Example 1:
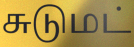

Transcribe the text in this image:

சுடுமட்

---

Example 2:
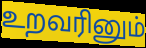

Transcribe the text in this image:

உறவரினும்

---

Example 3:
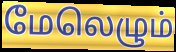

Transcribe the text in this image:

மேலெழும்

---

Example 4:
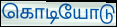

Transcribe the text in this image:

கொடியோடு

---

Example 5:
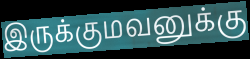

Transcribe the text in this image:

இருக்குமவனுக்கு